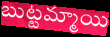
బుట్టమ్మాయి